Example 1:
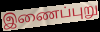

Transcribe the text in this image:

இணைப்புறு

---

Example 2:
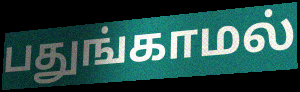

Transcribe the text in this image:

பதுங்காமல்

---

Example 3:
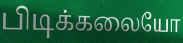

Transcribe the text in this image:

பிடிக்கலையோ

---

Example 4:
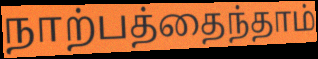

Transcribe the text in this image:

நாற்பத்தைந்தாம்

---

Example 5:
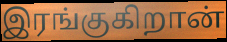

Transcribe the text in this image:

இரங்குகிறான்